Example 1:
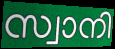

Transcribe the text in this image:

സ്വാനി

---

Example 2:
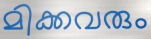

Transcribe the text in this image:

മിക്കവരും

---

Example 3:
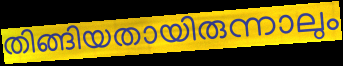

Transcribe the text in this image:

തിങ്ങിയതായിരുന്നാലും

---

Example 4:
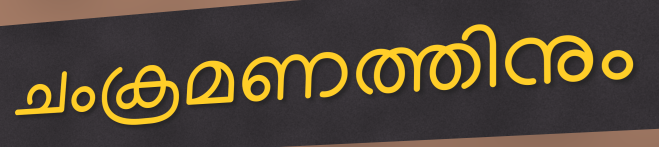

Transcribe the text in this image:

ചംക്രമണത്തിനും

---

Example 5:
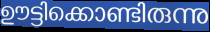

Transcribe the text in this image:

ഊട്ടിക്കൊണ്ടിരുന്നു